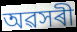
অৱসৰী